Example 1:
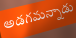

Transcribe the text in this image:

అడగమన్నాడు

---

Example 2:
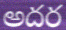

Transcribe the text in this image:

అదర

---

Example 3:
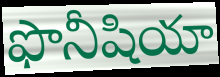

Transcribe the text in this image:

ఫొనీషియా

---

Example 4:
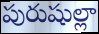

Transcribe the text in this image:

పురుషుల్లా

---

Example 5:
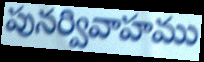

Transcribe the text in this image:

పునర్వివాహము